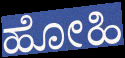
ಹೋಹಿ